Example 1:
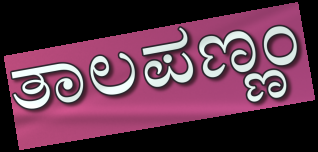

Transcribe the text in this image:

ತಾಲಪಣ್ಣಂ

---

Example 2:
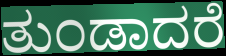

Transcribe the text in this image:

ತುಂಡಾದರೆ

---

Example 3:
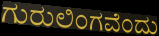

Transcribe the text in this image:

ಗುರುಲಿಂಗವೆಂದು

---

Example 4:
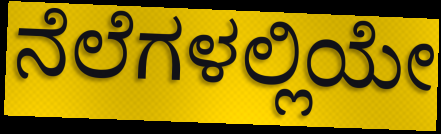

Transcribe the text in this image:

ನೆಲೆಗಳಲ್ಲಿಯೇ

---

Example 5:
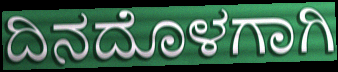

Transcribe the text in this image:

ದಿನದೊಳಗಾಗಿ